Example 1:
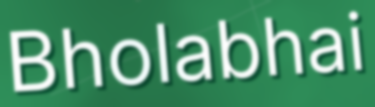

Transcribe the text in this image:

Bholabhai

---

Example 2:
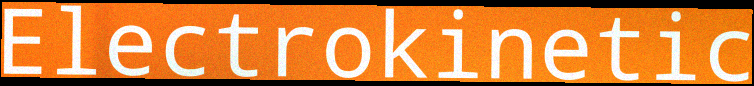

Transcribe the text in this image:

Electrokinetic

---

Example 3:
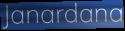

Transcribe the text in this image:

Janardana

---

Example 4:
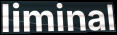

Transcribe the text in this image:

liminal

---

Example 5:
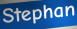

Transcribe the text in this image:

Stephan